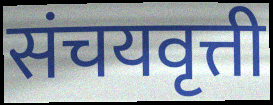
संचयवृत्ती